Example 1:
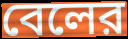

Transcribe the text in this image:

বেলের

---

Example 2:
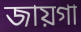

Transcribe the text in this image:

জায়গা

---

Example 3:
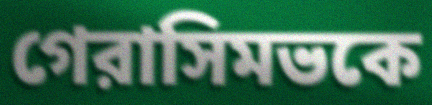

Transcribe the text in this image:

গেরাসিমভকে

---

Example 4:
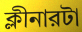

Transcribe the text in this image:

ক্লীনারটা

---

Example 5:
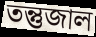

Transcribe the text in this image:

তন্তুজাল